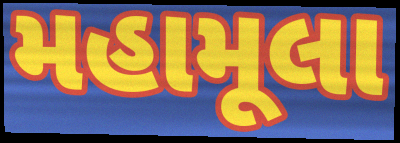
મહામૂલા